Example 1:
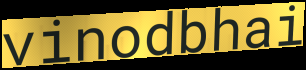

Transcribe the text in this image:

vinodbhai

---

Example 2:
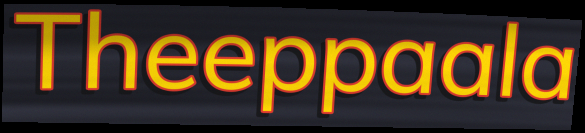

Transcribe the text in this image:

Theeppaala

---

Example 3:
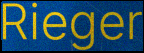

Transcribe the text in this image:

Rieger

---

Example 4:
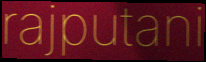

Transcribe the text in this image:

rajputani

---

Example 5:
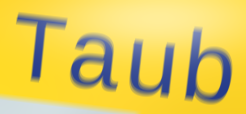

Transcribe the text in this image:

Taub